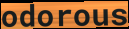
odorous